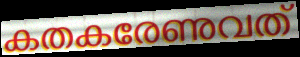
കതകരേണുവത്